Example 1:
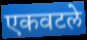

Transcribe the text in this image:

एकवटले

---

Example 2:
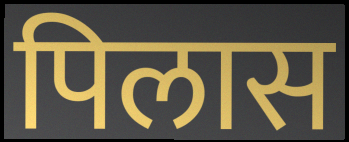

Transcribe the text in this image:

पिलास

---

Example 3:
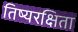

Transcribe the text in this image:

तिष्यरक्षिता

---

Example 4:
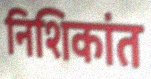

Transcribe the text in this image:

निशिकांत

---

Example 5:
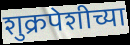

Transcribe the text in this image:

शुक्रपेशीच्या